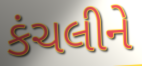
કંચલીને